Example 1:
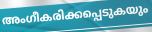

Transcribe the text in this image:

അംഗീകരിക്കപ്പെടുകയും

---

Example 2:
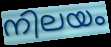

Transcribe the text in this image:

നിലയം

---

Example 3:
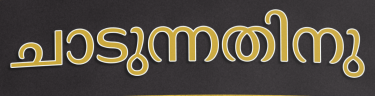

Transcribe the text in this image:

ചാടുന്നതിനു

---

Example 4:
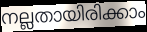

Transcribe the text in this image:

നല്ലതായിരിക്കാം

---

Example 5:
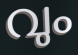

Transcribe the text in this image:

വും